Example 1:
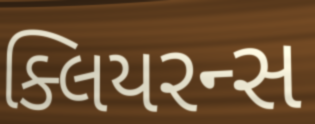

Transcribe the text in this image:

ક્લિયરન્સ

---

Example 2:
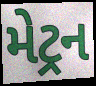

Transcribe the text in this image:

મેટ્રન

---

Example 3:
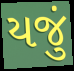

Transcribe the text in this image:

યજું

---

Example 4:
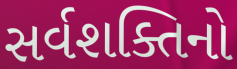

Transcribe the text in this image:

સર્વશક્તિનો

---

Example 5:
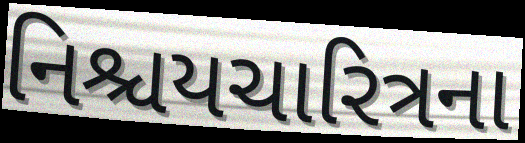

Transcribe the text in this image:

નિશ્ચયચારિત્રના